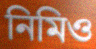
নিমিও